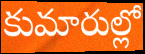
కుమారుల్లో